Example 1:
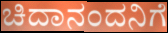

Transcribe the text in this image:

ಚಿದಾನಂದನಿಗೆ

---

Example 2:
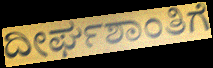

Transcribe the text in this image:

ದೀರ್ಘಶಾಂತಿಗೆ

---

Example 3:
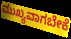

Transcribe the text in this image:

ಮುಖ್ಯವಾಗಬೇಕೆ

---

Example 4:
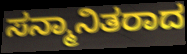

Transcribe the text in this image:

ಸನ್ಮಾನಿತರಾದ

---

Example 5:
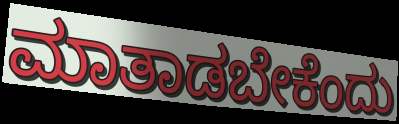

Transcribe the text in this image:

ಮಾತಾಡಬೇಕೆಂದು